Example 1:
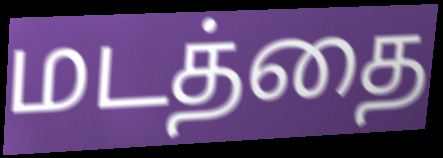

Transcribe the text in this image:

மடத்தை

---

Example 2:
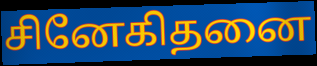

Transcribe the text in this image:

சினேகிதனை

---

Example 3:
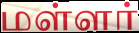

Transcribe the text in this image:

மள்ளர்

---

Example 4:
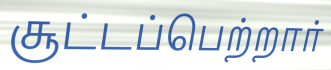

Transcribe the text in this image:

சூட்டப்பெற்றார்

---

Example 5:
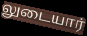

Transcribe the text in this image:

லுடையார்